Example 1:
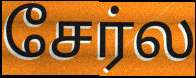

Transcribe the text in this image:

சேர்ல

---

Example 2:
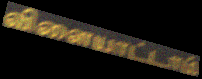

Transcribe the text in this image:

விளையாட்டாம்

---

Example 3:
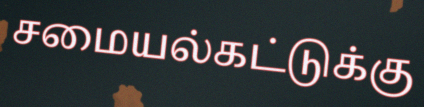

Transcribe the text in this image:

சமையல்கட்டுக்கு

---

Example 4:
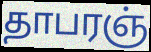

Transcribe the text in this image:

தாபரஞ்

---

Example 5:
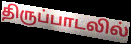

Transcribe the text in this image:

திருப்பாடலில்